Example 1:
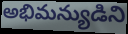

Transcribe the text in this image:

అభిమన్యుడిని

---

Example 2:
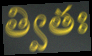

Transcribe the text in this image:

త్వితః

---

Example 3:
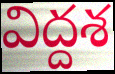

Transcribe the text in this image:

విద్దశ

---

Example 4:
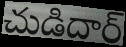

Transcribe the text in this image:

చుడిదార్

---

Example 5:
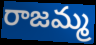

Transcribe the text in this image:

రాజమ్మ